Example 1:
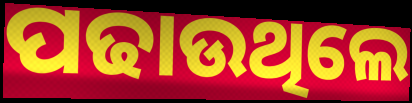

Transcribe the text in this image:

ପଢାଉଥିଲେ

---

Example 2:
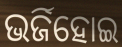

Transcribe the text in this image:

ଭର୍ଜିହୋଇ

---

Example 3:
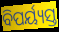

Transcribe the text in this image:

ବିପର୍ୟ୍ୟସ୍ତ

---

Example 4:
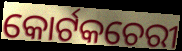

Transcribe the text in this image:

କୋର୍ଟକଚେରୀ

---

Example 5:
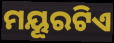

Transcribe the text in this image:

ମୟୂରଟିଏ